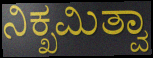
ನಿಕ್ಖಮಿತ್ವಾ